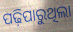
ପଢ଼ିପାରୁଥିଲା